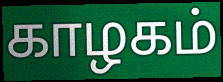
காழகம்